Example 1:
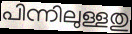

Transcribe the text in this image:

പിന്നിലുള്ളതു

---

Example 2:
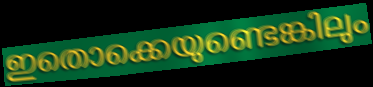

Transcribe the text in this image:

ഇതൊക്കെയുണ്ടെങ്കിലും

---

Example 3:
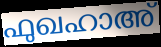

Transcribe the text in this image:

ഫുഖഹാഅ്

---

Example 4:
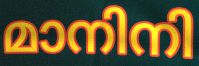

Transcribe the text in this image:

മാനിനി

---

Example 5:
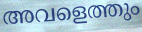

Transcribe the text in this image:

അവളെത്തും